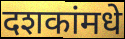
दशकांमधे